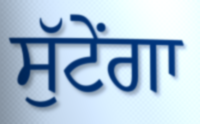
ਸੁੱਟੇਂਗਾ